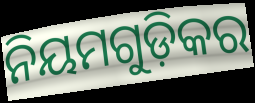
ନିୟମଗୁଡ଼ିକର